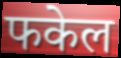
फकेल